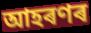
আহৰণৰ